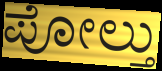
ಪೋಲ್ತು